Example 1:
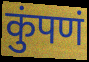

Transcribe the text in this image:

कुंपणं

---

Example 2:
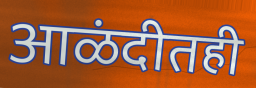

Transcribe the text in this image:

आळंदीतही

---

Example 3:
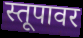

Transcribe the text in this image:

स्तूपावर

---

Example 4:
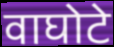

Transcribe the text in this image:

वाघोटे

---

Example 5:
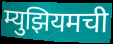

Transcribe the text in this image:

म्युझियमची